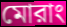
মোরাং